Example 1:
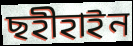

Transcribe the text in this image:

ছহীহাইন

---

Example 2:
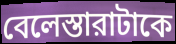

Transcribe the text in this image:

বেলেস্তারাটাকে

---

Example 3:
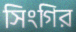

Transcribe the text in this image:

সিংগির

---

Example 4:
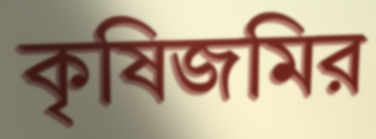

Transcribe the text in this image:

কৃষিজমির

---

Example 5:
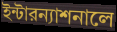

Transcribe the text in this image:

ইন্টারন্যাশনালে